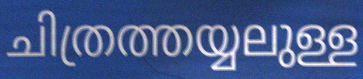
ചിത്രത്തയ്യലുള്ള